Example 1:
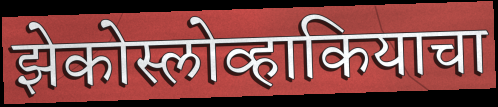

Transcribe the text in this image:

झेकोस्लोव्हाकियाचा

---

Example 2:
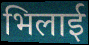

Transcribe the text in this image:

भिलाई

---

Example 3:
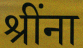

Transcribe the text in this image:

श्रींना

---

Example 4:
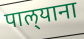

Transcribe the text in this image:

पाल्याना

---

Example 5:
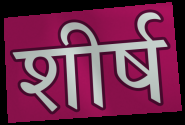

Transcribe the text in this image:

शीर्ष